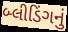
બ્લીડિંગનું